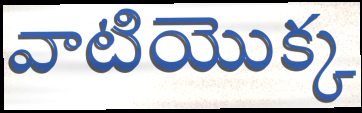
వాటియొక్క